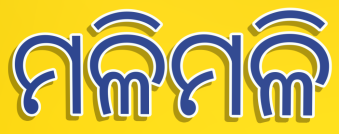
ମଳିମଳି